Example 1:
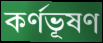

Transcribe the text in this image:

কর্ণভূষণ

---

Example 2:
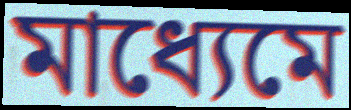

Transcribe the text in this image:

মাধ্যেমে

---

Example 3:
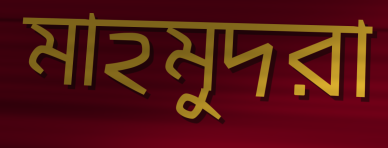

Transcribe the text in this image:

মাহমুদরা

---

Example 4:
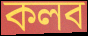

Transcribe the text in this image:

কলব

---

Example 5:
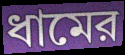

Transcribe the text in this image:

ধামের